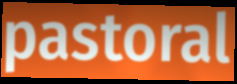
pastoral